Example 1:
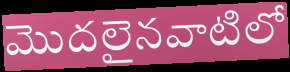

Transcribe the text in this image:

మొదలైనవాటిలో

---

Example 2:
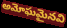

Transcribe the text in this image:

అమోఘమైనవి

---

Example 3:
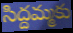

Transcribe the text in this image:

సిద్దమ్మకు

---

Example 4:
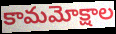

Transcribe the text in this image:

కామమోక్షాల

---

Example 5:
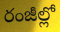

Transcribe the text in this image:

రంజీల్లో